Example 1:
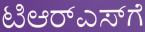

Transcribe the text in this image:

ಟಿಆರ್‌ಎಸ್‌ಗೆ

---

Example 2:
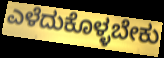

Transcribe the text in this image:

ಎಳೆದುಕೊಳ್ಳಬೇಕು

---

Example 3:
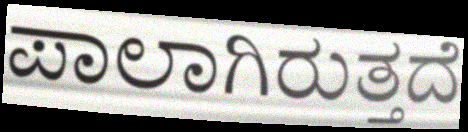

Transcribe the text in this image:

ಪಾಲಾಗಿರುತ್ತದೆ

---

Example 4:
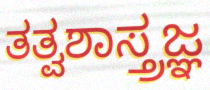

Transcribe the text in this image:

ತತ್ವಶಾಸ್ತ್ರಜ್ಞ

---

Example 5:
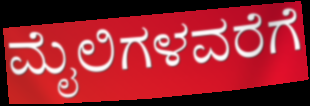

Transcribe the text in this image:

ಮೈಲಿಗಳವರೆಗೆ